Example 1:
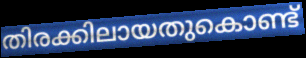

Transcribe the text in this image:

തിരക്കിലായതുകൊണ്ട്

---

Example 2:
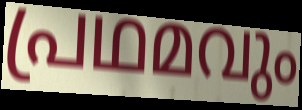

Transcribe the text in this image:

പ്രഥമവും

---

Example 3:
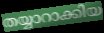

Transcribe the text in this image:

തയ്യാറാക്കിയ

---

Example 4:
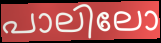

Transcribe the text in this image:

പാലിലോ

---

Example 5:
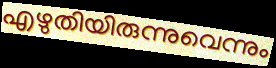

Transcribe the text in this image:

എഴുതിയിരുന്നുവെന്നും